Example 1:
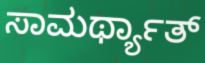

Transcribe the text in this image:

ಸಾಮರ್ಥ್ಯಾತ್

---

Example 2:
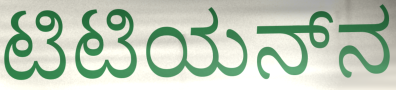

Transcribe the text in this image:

ಟಿಟಿಯನ್‌ನ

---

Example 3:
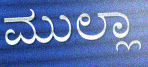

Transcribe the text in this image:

ಮುಲ್ಲಾ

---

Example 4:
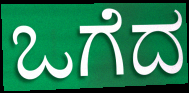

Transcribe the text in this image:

ಒಗೆದ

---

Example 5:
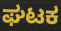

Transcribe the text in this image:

ಘಟಕ